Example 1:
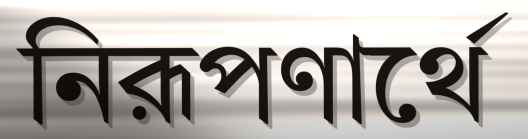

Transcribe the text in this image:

নিরূপণার্থে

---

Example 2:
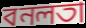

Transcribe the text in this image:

বনলতা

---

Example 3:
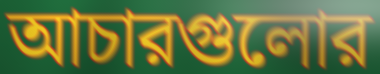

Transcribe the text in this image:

আচারগুলোর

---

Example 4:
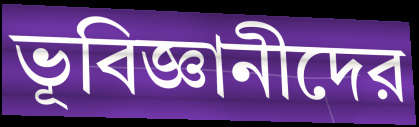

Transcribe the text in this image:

ভূবিজ্ঞানীদের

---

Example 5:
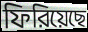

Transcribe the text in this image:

ফিরিয়েছে